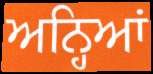
ਅਨ੍ਹਿਆਂ